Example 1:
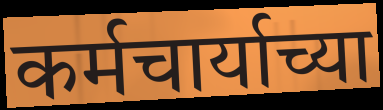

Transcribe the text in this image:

कर्मचार्याच्या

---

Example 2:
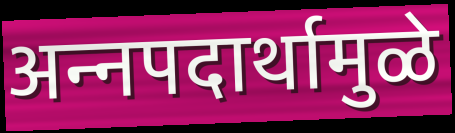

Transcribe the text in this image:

अन्नपदार्थामुळे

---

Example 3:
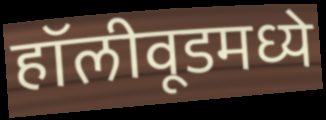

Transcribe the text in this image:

हॉलीवूडमध्ये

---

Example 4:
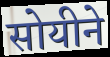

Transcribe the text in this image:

सोयीने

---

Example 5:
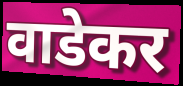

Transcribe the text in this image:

वाडेकर